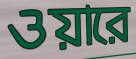
ওয়ারে